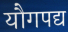
यौगपद्य